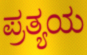
ಪ್ರತ್ಯಯ